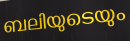
ബലിയുടെയും